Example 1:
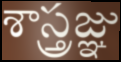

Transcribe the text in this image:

శాస్త్రజ్ఞు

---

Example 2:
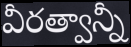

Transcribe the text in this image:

వీరత్వాన్నీ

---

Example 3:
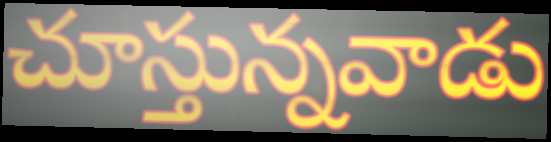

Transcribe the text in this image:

చూస్తున్నవాడు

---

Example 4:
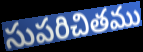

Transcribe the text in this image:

సుపరిచితము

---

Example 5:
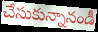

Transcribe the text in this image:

చేసుకున్నానండీ